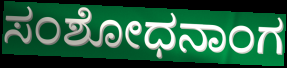
ಸಂಶೋಧನಾಂಗ